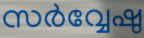
സർവ്വേഷു